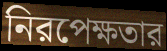
নিরপেক্ষতার